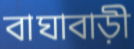
বাঘাবাড়ী